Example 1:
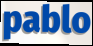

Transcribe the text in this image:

pablo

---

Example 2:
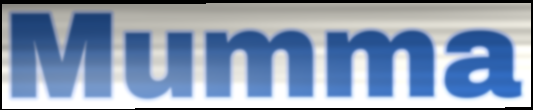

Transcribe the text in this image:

Mumma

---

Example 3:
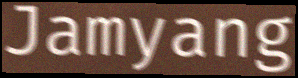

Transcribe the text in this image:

Jamyang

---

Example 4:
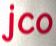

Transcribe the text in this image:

jco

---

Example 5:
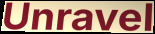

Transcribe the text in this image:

Unravel